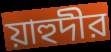
য়াহুদীর